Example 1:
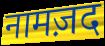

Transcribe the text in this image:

नामज़द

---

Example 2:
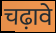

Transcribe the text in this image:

चढ़ावे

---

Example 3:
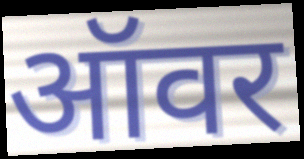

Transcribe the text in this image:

ऑवर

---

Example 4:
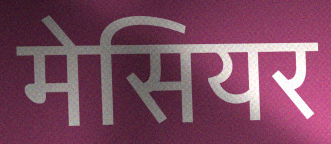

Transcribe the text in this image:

मेसियर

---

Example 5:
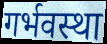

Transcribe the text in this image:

गर्भवस्था